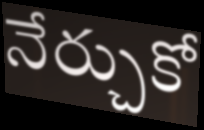
నేర్చుకో